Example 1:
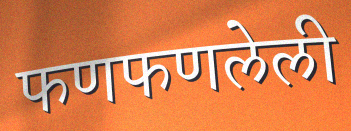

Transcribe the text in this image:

फणफणलेली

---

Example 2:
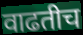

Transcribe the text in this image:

वाढतीच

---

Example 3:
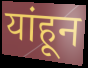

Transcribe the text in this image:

यांहून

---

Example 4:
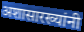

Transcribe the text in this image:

अशासारख्यांनी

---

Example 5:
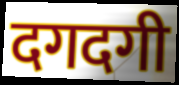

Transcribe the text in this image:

दगदगी